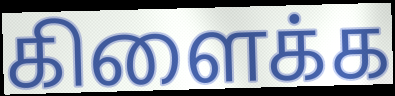
கிளைக்க